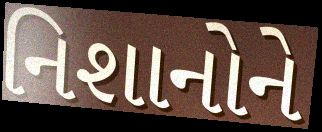
નિશાનોને